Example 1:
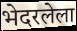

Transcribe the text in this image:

भेदरलेला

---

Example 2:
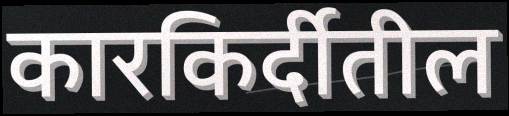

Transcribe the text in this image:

कारकिर्दीतील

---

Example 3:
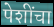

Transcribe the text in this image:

पेशींचा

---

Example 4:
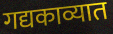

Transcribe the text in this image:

गद्यकाव्यात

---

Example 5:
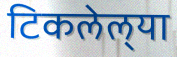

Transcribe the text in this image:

टिकलेल्या